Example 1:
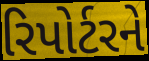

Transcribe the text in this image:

રિપોર્ટરને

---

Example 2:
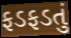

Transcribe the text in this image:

ફડફડતું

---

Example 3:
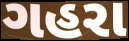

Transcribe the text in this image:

ગહરા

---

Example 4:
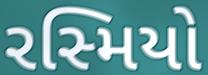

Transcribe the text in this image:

રસ્મિયો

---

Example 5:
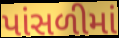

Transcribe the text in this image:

પાંસળીમાં